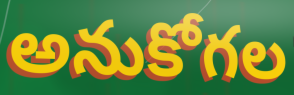
అనుకోగల